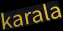
karala